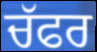
ਚੱਫਰ